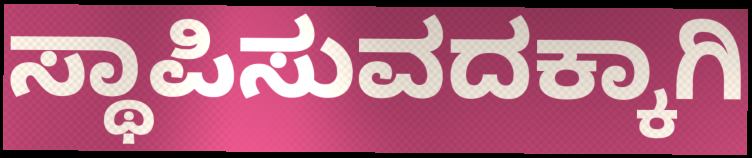
ಸ್ಥಾಪಿಸುವದಕ್ಕಾಗಿ